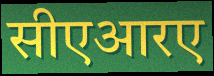
सीएआरए